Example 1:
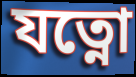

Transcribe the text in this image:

যত্নো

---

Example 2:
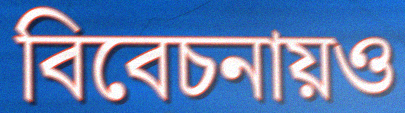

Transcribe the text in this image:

বিবেচনায়ও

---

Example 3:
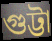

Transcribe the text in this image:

গুট্টা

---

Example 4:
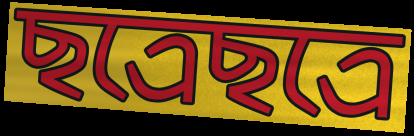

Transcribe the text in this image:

ছত্রেছত্রে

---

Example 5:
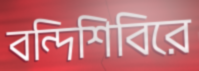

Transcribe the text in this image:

বন্দিশিবিরে